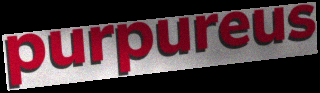
purpureus